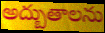
అద్బుతాలను